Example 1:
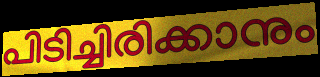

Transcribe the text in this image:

പിടിച്ചിരിക്കാനും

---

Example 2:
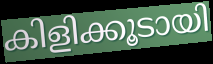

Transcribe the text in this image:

കിളിക്കൂടായി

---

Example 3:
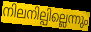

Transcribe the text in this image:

നിലനില്പില്ലെന്നും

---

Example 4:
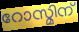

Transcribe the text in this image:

റോസ്മിന്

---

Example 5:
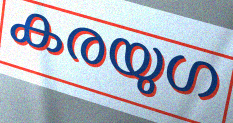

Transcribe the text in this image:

കരയുഗ